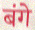
बंगे